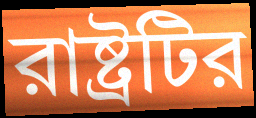
রাষ্ট্রটির